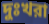
দুঃখরা